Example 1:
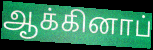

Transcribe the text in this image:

ஆக்கினாப்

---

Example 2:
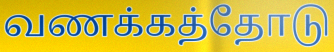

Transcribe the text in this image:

வணக்கத்தோடு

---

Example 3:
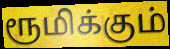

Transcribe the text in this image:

ரூமிக்கும்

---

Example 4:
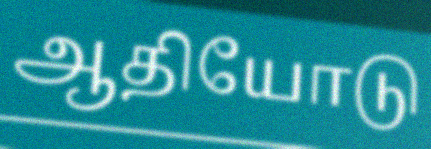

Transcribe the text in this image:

ஆதியோடு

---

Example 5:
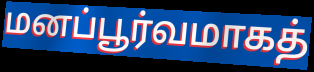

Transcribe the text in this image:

மனப்பூர்வமாகத்